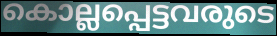
കൊല്ലപ്പെട്ടവരുടെ